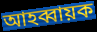
আহব্বায়ক